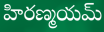
హిరణ్మయమ్